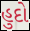
હુદો